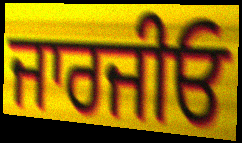
ਜਾਰਜੀਓ